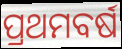
ପ୍ରଥମବର୍ଷ